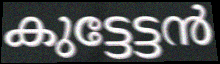
കുട്ടേട്ടൻ